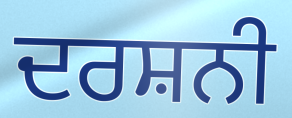
ਦਰਸ਼ਨੀ